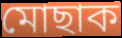
মোছাক